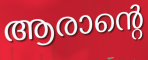
ആരാന്റെ